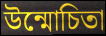
উন্মোচিতা